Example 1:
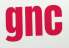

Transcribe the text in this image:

gnc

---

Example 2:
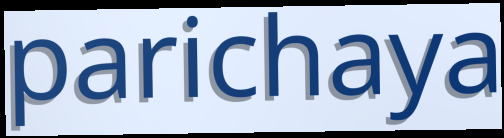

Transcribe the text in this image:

parichaya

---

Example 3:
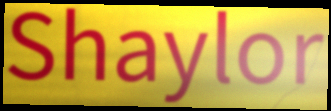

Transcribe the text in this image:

Shaylor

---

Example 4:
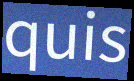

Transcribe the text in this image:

quis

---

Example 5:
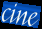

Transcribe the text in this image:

cine